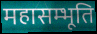
महासम्भूति